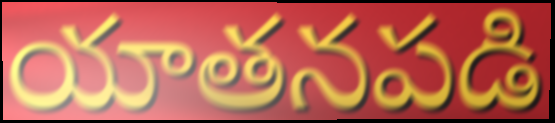
యాతనపడి